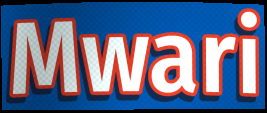
Mwari